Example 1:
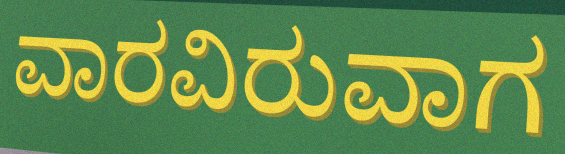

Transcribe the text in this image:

ವಾರವಿರುವಾಗ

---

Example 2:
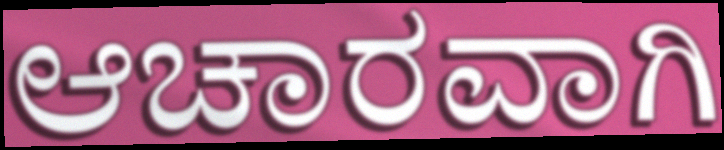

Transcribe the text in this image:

ಆಚಾರವಾಗಿ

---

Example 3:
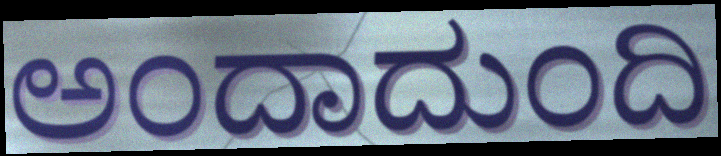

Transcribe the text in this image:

ಅಂದಾದುಂದಿ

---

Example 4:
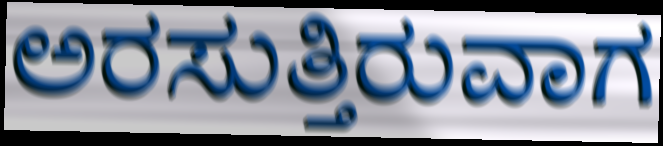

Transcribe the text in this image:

ಅರಸುತ್ತಿರುವಾಗ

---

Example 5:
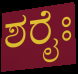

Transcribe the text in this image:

ಶರೈಃ